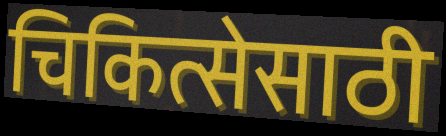
चिकित्सेसाठी